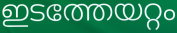
ഇടത്തേയറ്റം